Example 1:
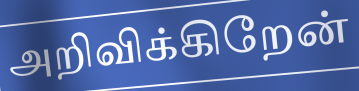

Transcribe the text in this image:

அறிவிக்கிறேன்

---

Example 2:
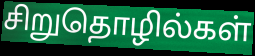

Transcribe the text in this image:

சிறுதொழில்கள்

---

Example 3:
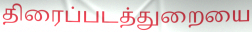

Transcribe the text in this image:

திரைப்படத்துறையை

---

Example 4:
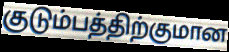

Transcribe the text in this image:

குடும்பத்திற்குமான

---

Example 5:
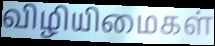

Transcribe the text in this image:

விழியிமைகள்